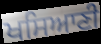
ਖਸਿਆਣੀ